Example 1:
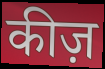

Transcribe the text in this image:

कीज़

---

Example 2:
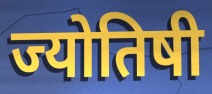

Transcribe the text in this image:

ज्योतिषी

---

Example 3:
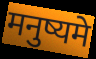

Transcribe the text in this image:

मनुष्यमे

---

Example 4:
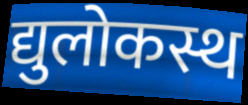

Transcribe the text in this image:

द्युलोकस्थ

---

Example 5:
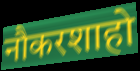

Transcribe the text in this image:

नौकरशाहो